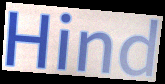
Hind